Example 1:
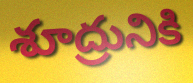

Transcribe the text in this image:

శూద్రునికి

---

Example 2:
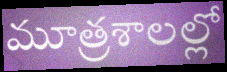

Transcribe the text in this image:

మూత్రశాలల్లో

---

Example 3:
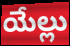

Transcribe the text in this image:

యేల్లు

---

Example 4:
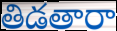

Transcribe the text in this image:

తిడతారా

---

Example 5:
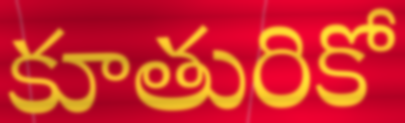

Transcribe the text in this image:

కూతురికో